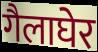
गैलाघेर